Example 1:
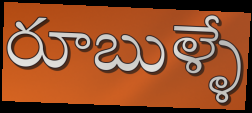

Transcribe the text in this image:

రూబుళ్ళే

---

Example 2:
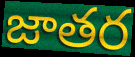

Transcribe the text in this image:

జాతర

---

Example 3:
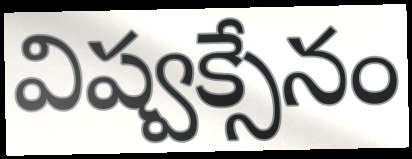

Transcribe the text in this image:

విష్వక్సేనం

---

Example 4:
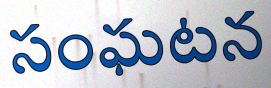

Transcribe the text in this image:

సంఘటన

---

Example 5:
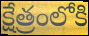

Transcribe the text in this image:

క్షేత్రంలోకి